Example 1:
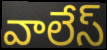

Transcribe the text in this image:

వాలేస్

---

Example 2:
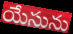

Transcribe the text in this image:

యేసును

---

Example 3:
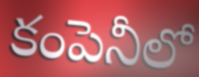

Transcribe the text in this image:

కంపెనీలో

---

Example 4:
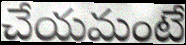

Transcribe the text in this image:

చేయమంటే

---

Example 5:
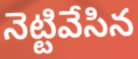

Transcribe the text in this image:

నెట్టివేసిన